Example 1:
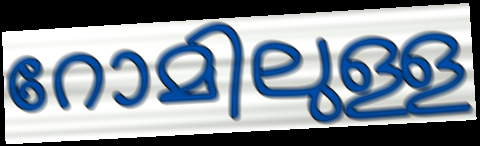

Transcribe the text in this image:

റോമിലുള്ള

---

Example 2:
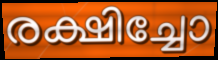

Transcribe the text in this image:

രക്ഷിച്ചോ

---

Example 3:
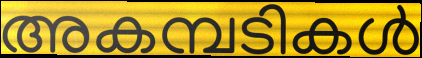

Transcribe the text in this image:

അകമ്പടികൾ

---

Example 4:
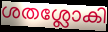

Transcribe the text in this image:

ശതശ്ലോകി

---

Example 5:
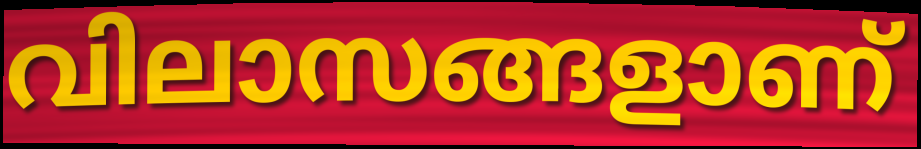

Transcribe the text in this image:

വിലാസങ്ങളാണ്